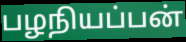
பழநியப்பன்